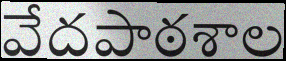
వేదపాఠశాల